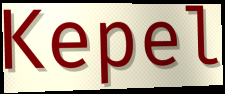
Kepel